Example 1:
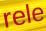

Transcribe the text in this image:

rele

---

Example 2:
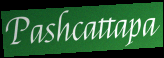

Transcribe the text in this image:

Pashcattapa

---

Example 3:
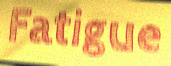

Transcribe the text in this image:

Fatigue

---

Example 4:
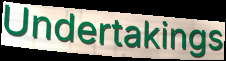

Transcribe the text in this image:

Undertakings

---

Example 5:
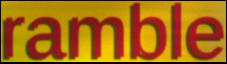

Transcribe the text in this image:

ramble